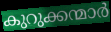
കുറുക്കന്മാർ